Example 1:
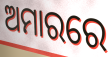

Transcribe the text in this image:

ଅମାରରେ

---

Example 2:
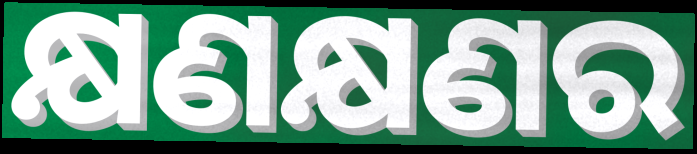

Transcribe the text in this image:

କ୍ଷଣକ୍ଷଣର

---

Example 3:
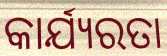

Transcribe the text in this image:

କାର୍ଯ୍ୟରତା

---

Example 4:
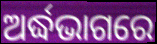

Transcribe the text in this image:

ଅର୍ଦ୍ଧଭାଗରେ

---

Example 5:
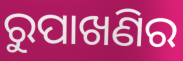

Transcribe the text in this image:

ରୁପାଖଣିର